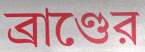
ব্রাণ্ডের